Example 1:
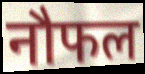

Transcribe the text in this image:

नौफल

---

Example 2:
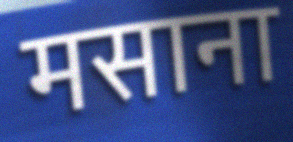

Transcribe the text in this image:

मसाना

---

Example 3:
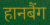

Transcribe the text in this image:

हानबैंग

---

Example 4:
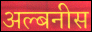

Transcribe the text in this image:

अल्बनीस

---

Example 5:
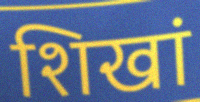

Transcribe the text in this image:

शिखां